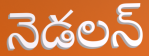
నెడలన్